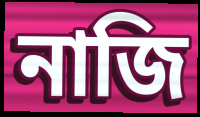
নাজি